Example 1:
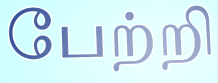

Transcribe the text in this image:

பேற்றி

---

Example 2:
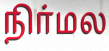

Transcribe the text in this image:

நிர்மல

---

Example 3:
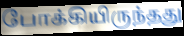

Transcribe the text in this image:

போக்கியிருந்தது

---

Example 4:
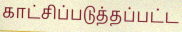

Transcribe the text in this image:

காட்சிப்படுத்தப்பட்ட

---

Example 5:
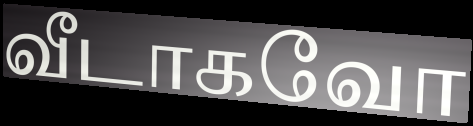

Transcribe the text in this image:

வீடாகவோ